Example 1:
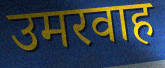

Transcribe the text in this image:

उमरवाह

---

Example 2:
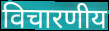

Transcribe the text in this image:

विचारणीय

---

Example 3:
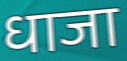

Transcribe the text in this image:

धाजा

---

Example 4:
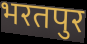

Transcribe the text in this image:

भरतपुर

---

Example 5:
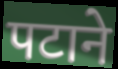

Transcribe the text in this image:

पटाने